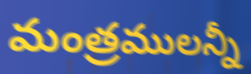
మంత్రములన్నీ